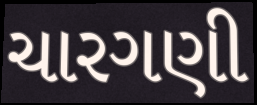
ચારગણી